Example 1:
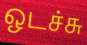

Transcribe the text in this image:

ஒடச்சு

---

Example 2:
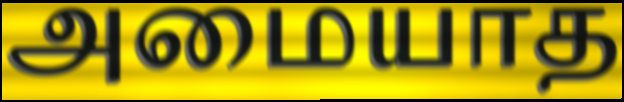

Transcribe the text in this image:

அமையாத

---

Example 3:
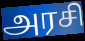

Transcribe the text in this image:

அரசி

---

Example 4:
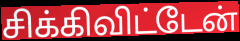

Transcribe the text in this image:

சிக்கிவிட்டேன்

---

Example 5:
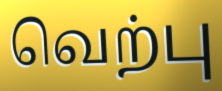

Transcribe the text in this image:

வெற்பு